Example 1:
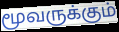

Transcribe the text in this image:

மூவருக்கும்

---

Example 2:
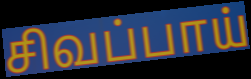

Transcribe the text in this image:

சிவப்பாய்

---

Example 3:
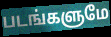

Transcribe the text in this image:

படங்களுமே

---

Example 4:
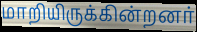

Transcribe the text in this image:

மாறியிருக்கின்றனர்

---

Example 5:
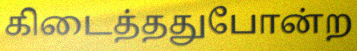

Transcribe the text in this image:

கிடைத்ததுபோன்ற